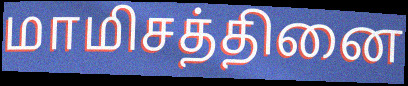
மாமிசத்தினை